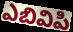
ఎబివిపి